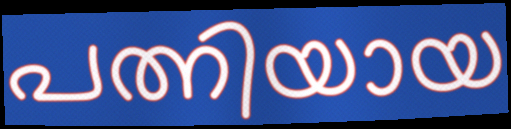
പത്നിയായ